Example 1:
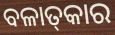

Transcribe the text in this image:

ବଳାତ୍‌କାର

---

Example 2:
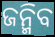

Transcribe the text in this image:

ଜନ୍ମିବ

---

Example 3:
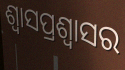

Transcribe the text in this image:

ଶ୍ଵାସପ୍ରଶ୍ଵାସର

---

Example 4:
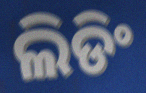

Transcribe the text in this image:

ଲିଡିଂ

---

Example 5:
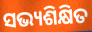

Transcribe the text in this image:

ସଭ୍ୟଶିକ୍ଷିତ